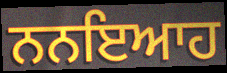
ਨਨਇਆਹ